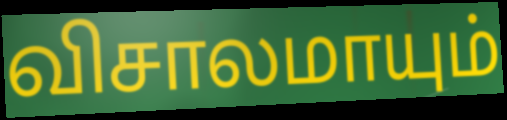
விசாலமாயும்